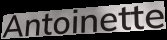
Antoinette